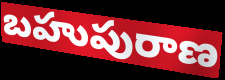
బహుపురాణ